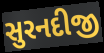
સુરનદીજી